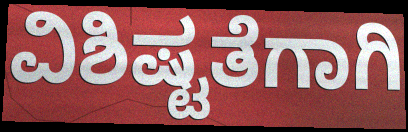
ವಿಶಿಷ್ಟತೆಗಾಗಿ